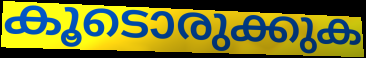
കൂടൊരുക്കുക